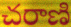
చరాణి